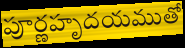
పూర్ణహృదయముతో